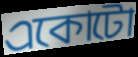
একোটো